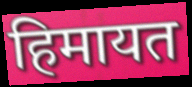
हिमायत